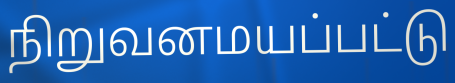
நிறுவனமயப்பட்டு